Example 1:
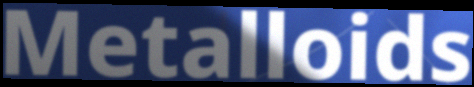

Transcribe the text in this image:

Metalloids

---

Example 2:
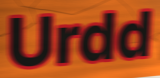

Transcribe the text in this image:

Urdd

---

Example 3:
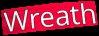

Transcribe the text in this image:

Wreath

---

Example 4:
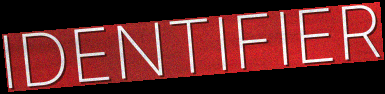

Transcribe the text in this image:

IDENTIFIER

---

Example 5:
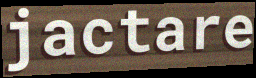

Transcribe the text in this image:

jactare